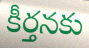
కీర్తనకు